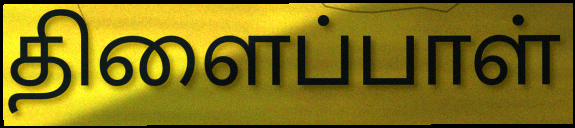
திளைப்பாள்